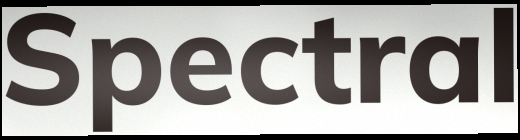
Spectral